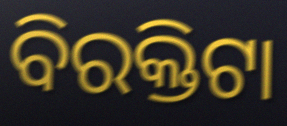
ବିରକ୍ତିଟା